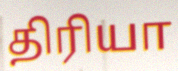
திரியா